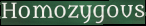
Homozygous